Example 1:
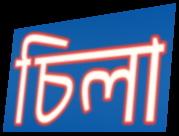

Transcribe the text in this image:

চিলা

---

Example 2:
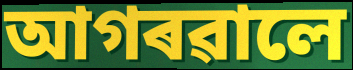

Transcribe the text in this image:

আগৰৱালে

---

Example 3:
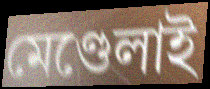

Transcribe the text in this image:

মেণ্ডেলাই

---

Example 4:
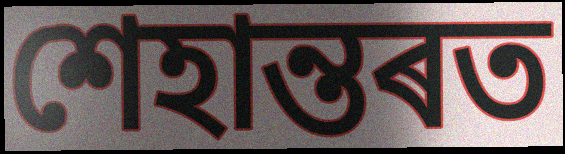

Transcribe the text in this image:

শেহান্তৰত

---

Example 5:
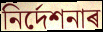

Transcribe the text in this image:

নিৰ্দেশনাৰ